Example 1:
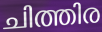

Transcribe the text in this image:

ചിത്തിര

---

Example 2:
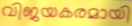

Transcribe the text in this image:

വിജയകരമായി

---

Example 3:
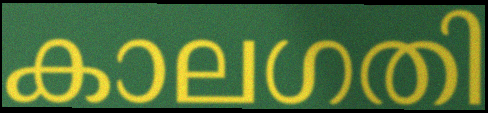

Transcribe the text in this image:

കാലഗതി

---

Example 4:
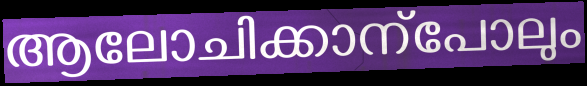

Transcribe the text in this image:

ആലോചിക്കാന്പോലും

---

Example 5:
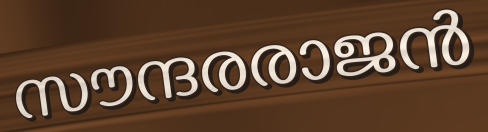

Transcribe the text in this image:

സൗന്ദരരാജൻ